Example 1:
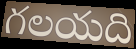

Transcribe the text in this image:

గలయది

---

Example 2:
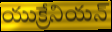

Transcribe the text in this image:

యుక్రేనియన్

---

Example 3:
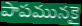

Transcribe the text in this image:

పాపమునకై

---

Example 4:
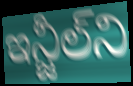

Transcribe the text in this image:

ఇన్జీల్‌ని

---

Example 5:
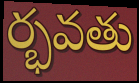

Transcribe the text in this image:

ర్భవతు